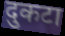
दुकटा